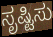
ಸೃಷ್ಟಿಸು